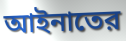
আইনাতের